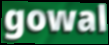
gowal